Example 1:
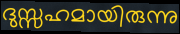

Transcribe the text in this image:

ദുസ്സഹമായിരുന്നു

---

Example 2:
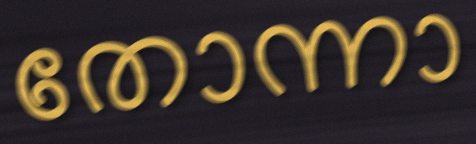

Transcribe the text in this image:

തോന്നാ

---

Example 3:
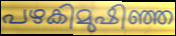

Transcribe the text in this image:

പഴകിമുഷിഞ്ഞ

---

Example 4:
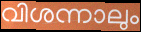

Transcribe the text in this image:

വിശന്നാലും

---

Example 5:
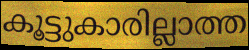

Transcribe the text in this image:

കൂട്ടുകാരില്ലാത്ത